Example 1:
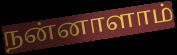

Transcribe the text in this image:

நன்னாளாம்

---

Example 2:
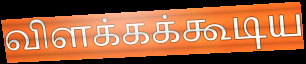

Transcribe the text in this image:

விளக்கக்கூடிய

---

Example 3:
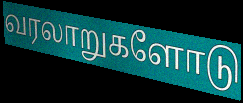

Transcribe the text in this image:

வரலாறுகளோடு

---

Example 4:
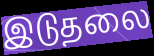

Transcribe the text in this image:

இடுதலை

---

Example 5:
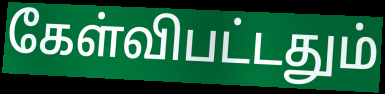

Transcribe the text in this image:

கேள்விபட்டதும்